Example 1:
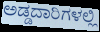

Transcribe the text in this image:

ಅಡ್ಡದಾರಿಗಳಲ್ಲಿ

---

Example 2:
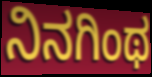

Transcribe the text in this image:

ನಿನಗಿಂಥ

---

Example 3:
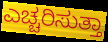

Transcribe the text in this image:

ಎಚ್ಚರಿಸುತ್ತಾ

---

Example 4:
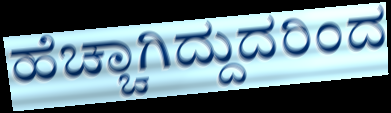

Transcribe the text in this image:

ಹೆಚ್ಚಾಗಿದ್ದುದರಿಂದ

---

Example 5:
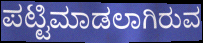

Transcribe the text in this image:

ಪಟ್ಟಿಮಾಡಲಾಗಿರುವ